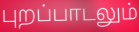
புறப்பாடலும்